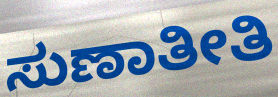
ಸುಣಾತೀತಿ